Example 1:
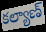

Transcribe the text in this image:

కల్యాణ్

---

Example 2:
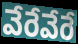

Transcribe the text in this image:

వేరేవేరే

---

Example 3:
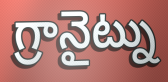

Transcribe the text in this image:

గ్రానైట్ను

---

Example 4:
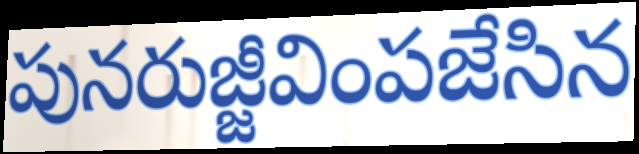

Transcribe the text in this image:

పునరుజ్జీవింపజేసిన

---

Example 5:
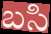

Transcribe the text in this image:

బసి